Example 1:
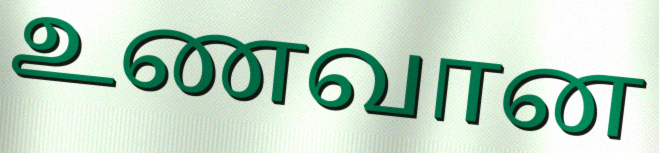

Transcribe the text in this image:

உணவான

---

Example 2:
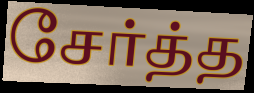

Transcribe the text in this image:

சேர்த்த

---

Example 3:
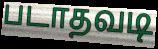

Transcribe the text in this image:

படாதவடி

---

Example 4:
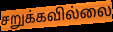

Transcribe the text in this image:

சறுக்கவில்லை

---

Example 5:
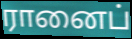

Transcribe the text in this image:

ரானைப்